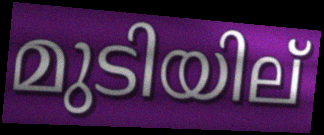
മുടിയില്